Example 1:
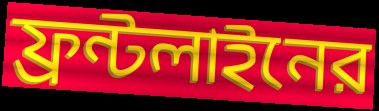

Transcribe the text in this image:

ফ্রন্টলাইনের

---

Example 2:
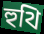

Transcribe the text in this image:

হুথি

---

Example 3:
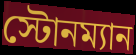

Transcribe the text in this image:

স্টোনম্যান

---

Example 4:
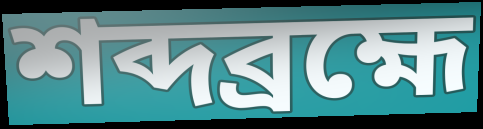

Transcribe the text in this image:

শব্দব্রহ্মে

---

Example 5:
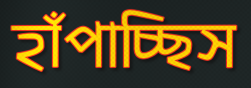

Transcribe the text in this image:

হাঁপাচ্ছিস